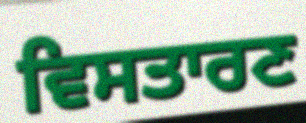
ਵਿਸਤਾਰਣ